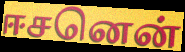
ஈசனென்